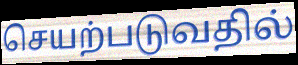
செயற்படுவதில்